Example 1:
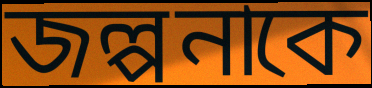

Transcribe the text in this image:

জল্পনাকে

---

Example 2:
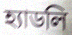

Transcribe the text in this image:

হ্যাডলি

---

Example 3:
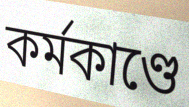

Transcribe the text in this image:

কর্মকাণ্ডে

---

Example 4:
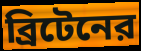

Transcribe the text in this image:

ব্রিটেনের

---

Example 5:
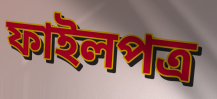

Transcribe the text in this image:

ফাইলপত্র